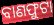
ବାଣଫୁଟା